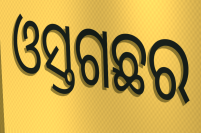
ଓସ୍ତଗଛର